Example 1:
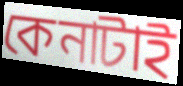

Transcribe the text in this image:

কেনাটাই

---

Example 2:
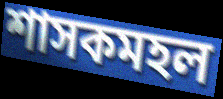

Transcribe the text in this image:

শাসকমহল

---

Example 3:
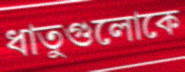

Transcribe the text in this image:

ধাতুগুলোকে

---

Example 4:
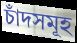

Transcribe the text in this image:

চাঁদসমূহ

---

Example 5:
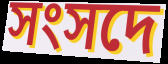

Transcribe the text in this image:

সংসদে